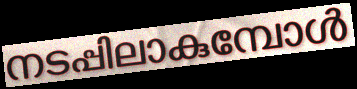
നടപ്പിലാകുമ്പോൾ